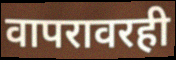
वापरावरही